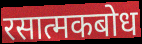
रसात्मकबोध